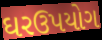
ઘરઉપયોગ